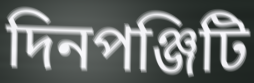
দিনপঞ্জিটি